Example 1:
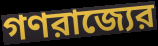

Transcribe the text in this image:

গণরাজ্যের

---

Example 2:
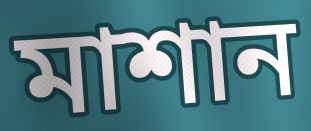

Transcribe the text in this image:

মাশান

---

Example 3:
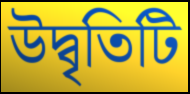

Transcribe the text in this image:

উদ্বৃতিটি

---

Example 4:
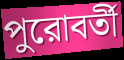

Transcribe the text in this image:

পুরোবর্তী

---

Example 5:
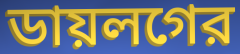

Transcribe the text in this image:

ডায়লগের